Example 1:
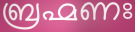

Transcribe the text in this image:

ബ്രഹ്മണഃ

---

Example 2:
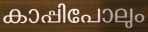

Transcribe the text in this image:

കാപ്പിപോലും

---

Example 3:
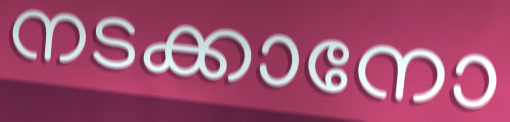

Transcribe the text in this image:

നടക്കാനോ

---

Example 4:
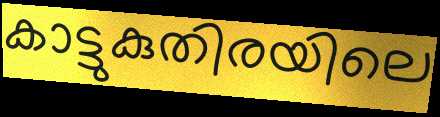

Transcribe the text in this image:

കാട്ടുകുതിരയിലെ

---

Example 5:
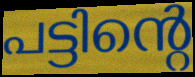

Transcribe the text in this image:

പട്ടിന്റെ